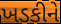
ખડકીને